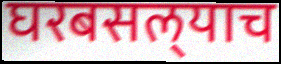
घरबसल्याच